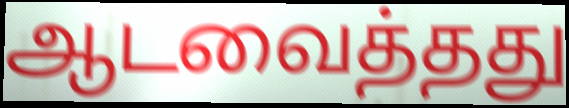
ஆடவைத்தது